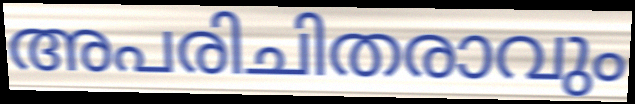
അപരിചിതരാവും